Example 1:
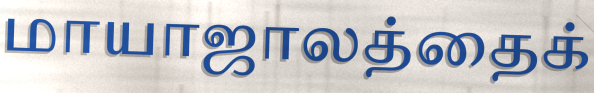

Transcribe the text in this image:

மாயாஜாலத்தைக்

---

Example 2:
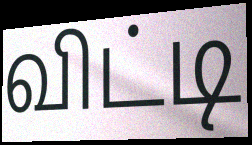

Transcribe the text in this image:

விட்டி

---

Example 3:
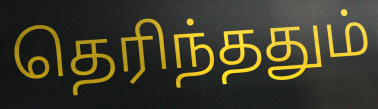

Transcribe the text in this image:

தெரிந்ததும்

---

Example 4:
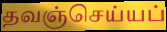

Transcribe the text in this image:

தவஞ்செய்யப்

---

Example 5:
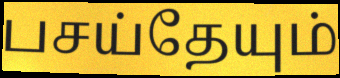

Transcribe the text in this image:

பசய்தேயும்